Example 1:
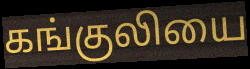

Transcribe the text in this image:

கங்குலியை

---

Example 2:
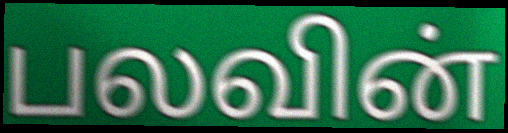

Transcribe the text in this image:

பலவின்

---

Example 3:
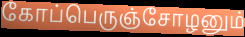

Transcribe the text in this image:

கோப்பெருஞ்சோழனும்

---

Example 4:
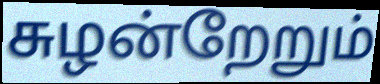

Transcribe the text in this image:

சுழன்றேறும்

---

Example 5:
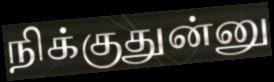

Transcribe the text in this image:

நிக்குதுன்னு